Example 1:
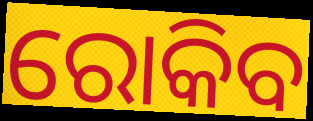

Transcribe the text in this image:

ରୋକିବ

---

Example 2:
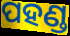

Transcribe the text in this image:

ପହଣ୍ଡ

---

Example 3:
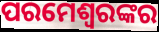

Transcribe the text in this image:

ପରମେଶ୍ୱରଙ୍କର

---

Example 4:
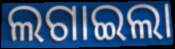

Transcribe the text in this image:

ଲଗାଇଲା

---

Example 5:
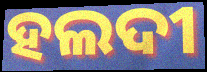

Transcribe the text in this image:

ହଲଦୀ